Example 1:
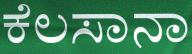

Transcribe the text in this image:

ಕೆಲಸಾನಾ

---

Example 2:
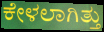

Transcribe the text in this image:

ಕೇಳಲಾಗಿತ್ತು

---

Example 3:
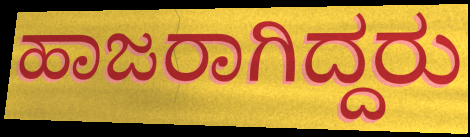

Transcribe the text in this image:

ಹಾಜರಾಗಿದ್ದರು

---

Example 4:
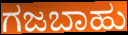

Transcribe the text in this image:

ಗಜಬಾಹು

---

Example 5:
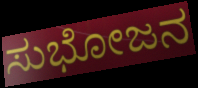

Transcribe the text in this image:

ಸುಭೋಜನ